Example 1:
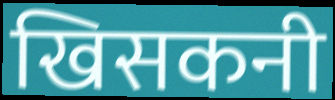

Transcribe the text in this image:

खिसकनी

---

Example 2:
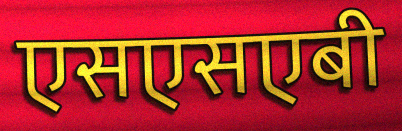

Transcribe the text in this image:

एसएसएबी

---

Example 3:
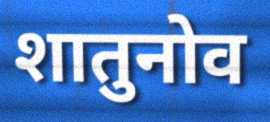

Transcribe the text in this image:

शातुनोव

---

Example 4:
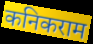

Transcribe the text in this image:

कनिकराम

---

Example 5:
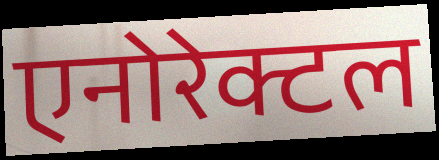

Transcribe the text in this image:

एनोरेक्टल